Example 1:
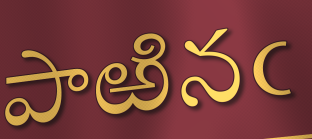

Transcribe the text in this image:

పాఱినఁ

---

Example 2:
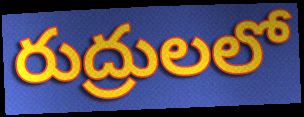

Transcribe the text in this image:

రుద్రులలో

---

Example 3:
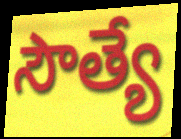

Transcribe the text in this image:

సౌత్యే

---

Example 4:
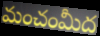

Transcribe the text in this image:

మంచంమీద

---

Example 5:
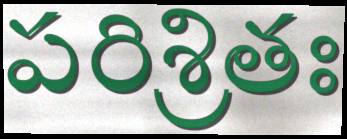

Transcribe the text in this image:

పరిశ్రితః